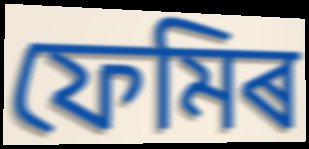
ফেমিৰ